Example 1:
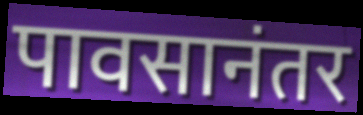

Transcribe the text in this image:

पावसानंतर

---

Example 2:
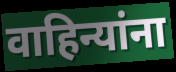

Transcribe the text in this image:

वाहिन्यांना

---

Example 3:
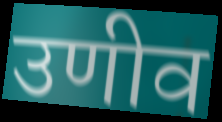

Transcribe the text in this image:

उणीव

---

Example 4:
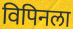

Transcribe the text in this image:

विपिनला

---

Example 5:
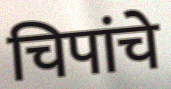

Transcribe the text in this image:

चिपांचे